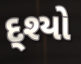
દ્શ્યો